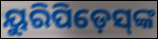
ୟୁରିପିଡ଼େସ୍‌ଙ୍କ